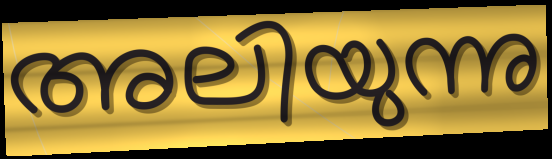
അലിയുന്നു